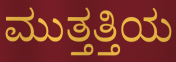
ಮುತ್ತತ್ತಿಯ